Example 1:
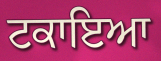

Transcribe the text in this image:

ਟਕਾਇਆ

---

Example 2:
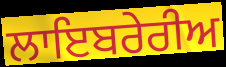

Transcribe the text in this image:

ਲਾਇਬਰੇਰੀਅ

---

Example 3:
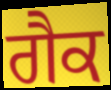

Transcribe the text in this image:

ਗੈਕ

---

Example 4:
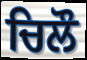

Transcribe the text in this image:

ਚਿਲੌ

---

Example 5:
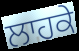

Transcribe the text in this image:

ਲਾਹਕੇ